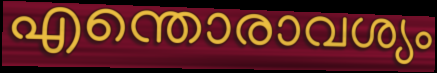
എന്തൊരാവശ്യം